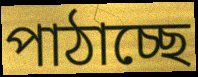
পাঠাচ্ছে